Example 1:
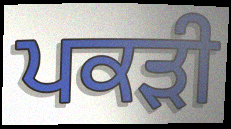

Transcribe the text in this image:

ਪਕੜੀ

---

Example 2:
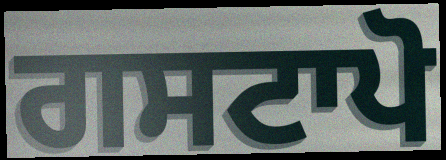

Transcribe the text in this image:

ਗਸਟਾਪੋ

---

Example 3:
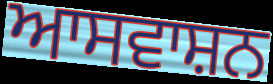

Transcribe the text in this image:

ਆਸਵਾਸ਼ਨ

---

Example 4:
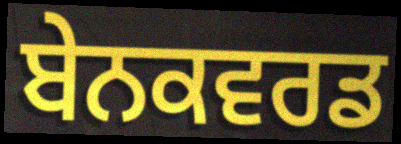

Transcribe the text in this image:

ਬੇਨਕਵਰਡ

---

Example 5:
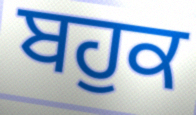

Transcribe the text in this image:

ਬਹੁਕ